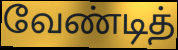
வேண்டித்